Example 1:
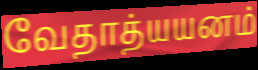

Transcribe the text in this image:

வேதாத்யயனம்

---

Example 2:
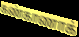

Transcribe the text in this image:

கண்காணாக்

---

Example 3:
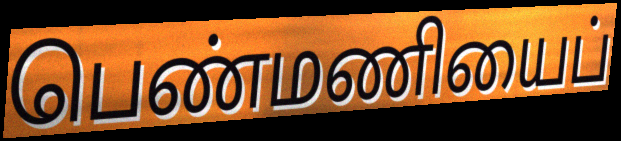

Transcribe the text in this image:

பெண்மணியைப்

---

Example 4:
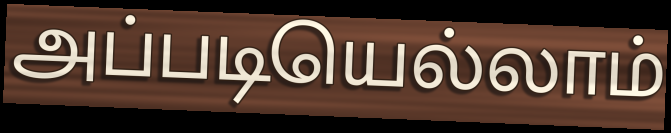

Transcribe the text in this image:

அப்படியெல்லாம்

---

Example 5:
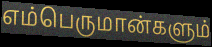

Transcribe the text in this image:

எம்பெருமான்களும்